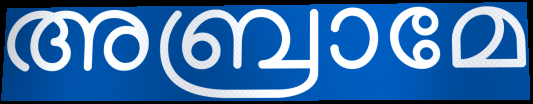
അബ്രാമേ